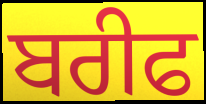
ਬਰੀਫ